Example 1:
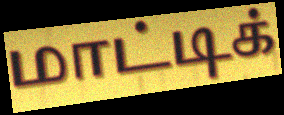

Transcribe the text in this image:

மாட்டிக்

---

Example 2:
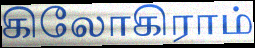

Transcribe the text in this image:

கிலோகிராம்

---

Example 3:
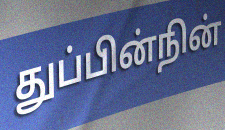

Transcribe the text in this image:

துப்பின்நின்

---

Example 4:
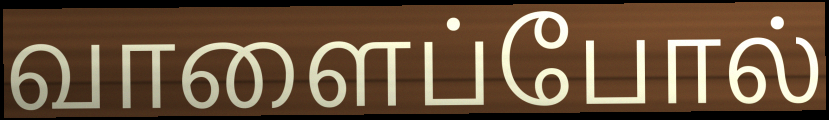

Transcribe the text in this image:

வாளைப்போல்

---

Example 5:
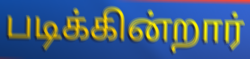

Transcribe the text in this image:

படிக்கின்றார்